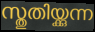
സ്തുതിയ്ക്കുന്ന